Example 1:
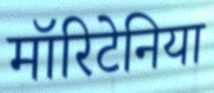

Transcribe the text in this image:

मॉरिटेनिया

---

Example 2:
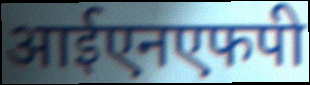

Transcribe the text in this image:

आईएनएफपी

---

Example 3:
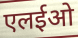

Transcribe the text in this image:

एलईओ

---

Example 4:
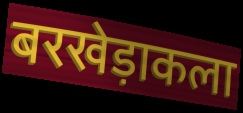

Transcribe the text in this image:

बरखेड़ाकला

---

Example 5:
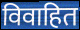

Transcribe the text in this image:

विवाहित